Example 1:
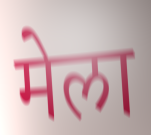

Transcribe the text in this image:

मेला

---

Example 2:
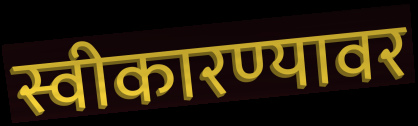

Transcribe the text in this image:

स्वीकारण्यावर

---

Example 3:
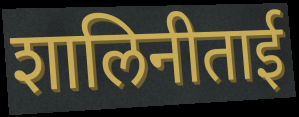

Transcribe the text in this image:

शालिनीताई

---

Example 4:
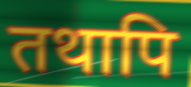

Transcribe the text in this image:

तथापि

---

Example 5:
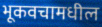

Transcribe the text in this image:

भूकवचामधील